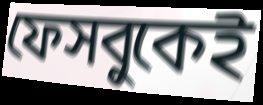
ফেসবুকেই